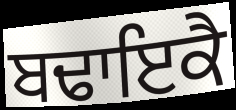
ਬਢਾਇਕੈ